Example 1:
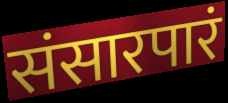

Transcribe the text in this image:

संसारपारं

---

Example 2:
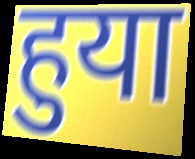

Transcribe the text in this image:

हुया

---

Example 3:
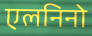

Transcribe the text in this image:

एलनिनो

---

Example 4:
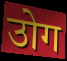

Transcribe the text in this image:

उोग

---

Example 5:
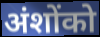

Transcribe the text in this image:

अंशोंको